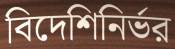
বিদেশিনির্ভর